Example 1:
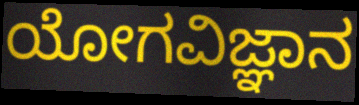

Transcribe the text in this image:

ಯೋಗವಿಜ್ಞಾನ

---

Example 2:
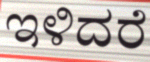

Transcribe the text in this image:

ಇಳಿದರೆ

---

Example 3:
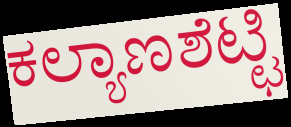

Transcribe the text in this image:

ಕಲ್ಯಾಣಶೆಟ್ಟಿ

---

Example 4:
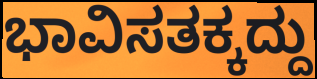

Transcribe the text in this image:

ಭಾವಿಸತಕ್ಕದ್ದು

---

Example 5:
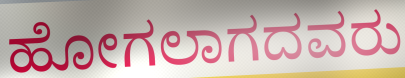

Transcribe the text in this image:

ಹೋಗಲಾಗದವರು